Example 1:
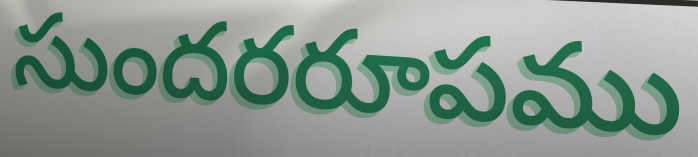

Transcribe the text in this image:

సుందరరూపము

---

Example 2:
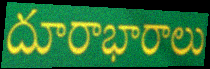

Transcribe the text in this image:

దూరాభారాలు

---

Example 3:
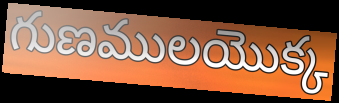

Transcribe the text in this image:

గుణములయొక్క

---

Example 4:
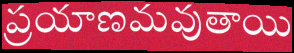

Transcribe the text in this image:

ప్రయాణమవుతాయి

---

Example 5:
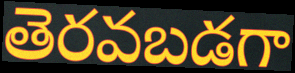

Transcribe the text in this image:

తెరవబడగా